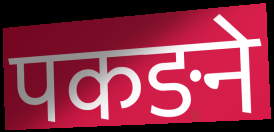
पकङने